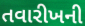
તવારીખની